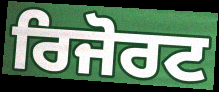
ਰਿਜੋਰਟ